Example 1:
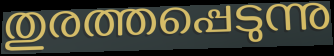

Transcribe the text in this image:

തുരത്തപ്പെടുന്നു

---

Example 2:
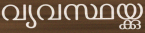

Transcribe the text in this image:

വ്യവസ്ഥയ്ക്കു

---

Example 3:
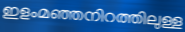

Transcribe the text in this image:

ഇളംമഞ്ഞനിറത്തിലുള്ള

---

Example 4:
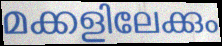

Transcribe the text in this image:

മക്കളിലേക്കും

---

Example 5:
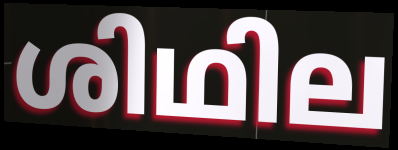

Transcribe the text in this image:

ശിഥില